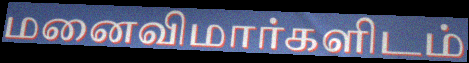
மனைவிமார்களிடம்